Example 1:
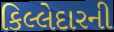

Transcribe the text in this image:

કિલ્લેદારની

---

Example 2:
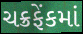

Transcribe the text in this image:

ચક્રફેંકમાં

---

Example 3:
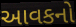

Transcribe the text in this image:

આવકનો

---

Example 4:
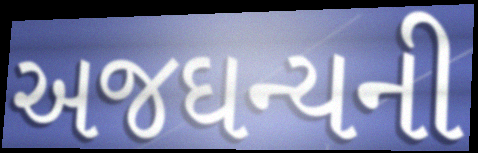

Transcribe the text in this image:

અજઘન્યની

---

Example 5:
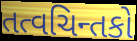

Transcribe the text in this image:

તત્વચિન્તકો